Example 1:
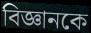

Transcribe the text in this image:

বিজ্ঞানকে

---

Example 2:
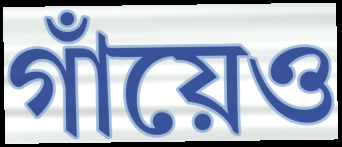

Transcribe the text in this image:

গাঁয়েও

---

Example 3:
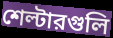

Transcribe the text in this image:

শেল্টারগুলি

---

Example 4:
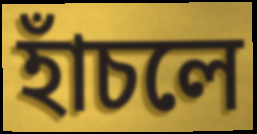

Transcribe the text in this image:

হাঁচলে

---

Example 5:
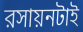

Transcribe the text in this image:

রসায়নটাই